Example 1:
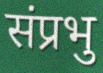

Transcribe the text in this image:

संप्रभु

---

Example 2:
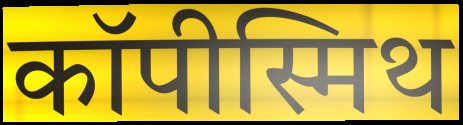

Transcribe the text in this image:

कॉपीस्मिथ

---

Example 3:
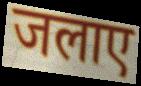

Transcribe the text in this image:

जलाए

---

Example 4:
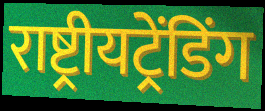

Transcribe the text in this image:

राष्ट्रीयट्रेंडिंग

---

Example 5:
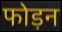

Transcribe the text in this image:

फोड़न